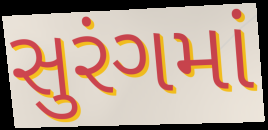
સુરંગમાં